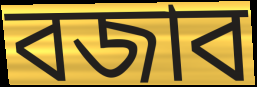
বজাব